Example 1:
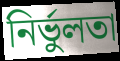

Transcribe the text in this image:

নির্ভুলতা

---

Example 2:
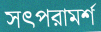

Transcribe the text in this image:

সৎপরামর্শ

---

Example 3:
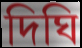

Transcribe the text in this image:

দিঘি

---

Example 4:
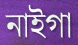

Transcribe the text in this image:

নাইগা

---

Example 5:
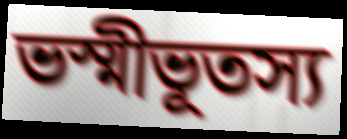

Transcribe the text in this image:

ভস্মীভূতস্য